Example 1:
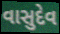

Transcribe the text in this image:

વાસુદેવ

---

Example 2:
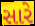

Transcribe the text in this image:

સારે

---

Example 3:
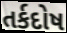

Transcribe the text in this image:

તર્કદોષ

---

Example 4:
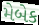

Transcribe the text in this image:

મેબેક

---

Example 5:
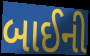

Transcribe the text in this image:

બાઈની